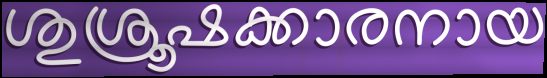
ശുശ്രൂഷക്കാരനായ